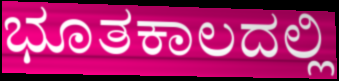
ಭೂತಕಾಲದಲ್ಲಿ